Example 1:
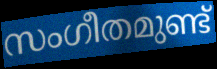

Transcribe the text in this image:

സംഗീതമുണ്ട്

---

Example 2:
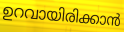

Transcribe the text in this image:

ഉറവായിരിക്കാൻ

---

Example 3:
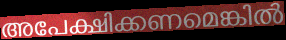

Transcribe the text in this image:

അപേക്ഷിക്കണമെങ്കിൽ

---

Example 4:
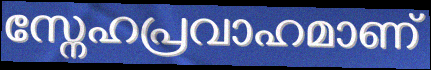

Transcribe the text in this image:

സ്നേഹപ്രവാഹമാണ്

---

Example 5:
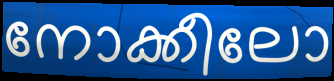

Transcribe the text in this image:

നോക്കീലോ